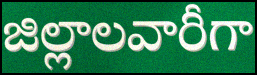
జిల్లాలవారీగా